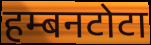
हम्बनटोटा